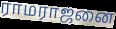
ராமராஜனை